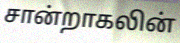
சான்றாகலின்